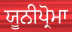
ਯੂਨੀਪ੍ਰੋਮਾ